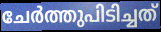
ചേർത്തുപിടിച്ചത്